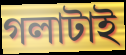
গলাটাই